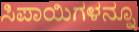
ಸಿಪಾಯಿಗಳನ್ನೂ